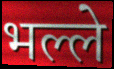
भल्ले